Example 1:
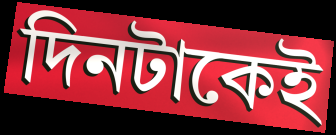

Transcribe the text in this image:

দিনটাকেই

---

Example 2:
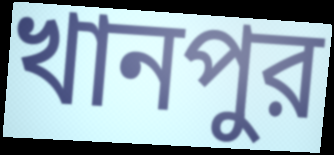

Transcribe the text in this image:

খানপুর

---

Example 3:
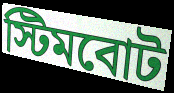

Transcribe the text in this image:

স্টিমবোট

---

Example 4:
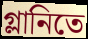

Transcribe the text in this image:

গ্লানিতে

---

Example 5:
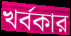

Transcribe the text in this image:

খর্বকার